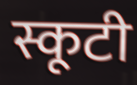
स्कूटी